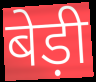
बेड़ी